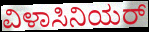
ವಿಳಾಸಿನಿಯರ್